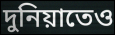
দুনিয়াতেও